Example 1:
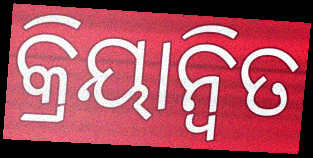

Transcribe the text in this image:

କ୍ରିୟାନ୍ୱିତ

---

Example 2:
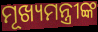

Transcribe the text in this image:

ମୂଖ୍ୟମନ୍ତ୍ରୀଙ୍କ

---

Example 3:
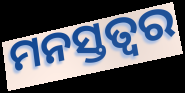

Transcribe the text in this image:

ମନସ୍ତତ୍ଵର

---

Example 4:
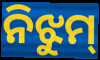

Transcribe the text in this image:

ନିଝୁମ୍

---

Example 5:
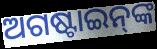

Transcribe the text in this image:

ଅଗଷ୍ଟାଇନ୍‌ଙ୍କ